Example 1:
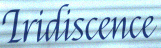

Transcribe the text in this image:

Iridiscence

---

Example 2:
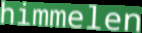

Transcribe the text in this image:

himmelen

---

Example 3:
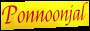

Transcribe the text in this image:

Ponnoonjal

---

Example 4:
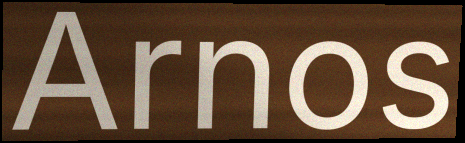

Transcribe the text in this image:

Arnos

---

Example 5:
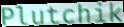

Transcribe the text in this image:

Plutchik